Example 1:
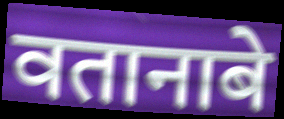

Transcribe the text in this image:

वतानाबे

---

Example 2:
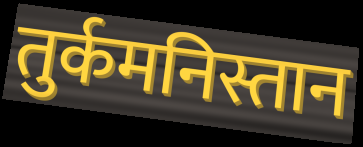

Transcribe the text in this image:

तुर्कमनिस्तान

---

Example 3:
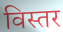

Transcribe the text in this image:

विस्तर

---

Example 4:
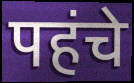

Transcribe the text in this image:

पहंचे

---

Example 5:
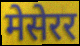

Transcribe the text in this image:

मेसेरर